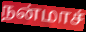
நன்மாச்